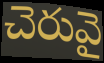
చెరువై